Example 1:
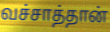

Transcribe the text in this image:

வச்சாத்தான்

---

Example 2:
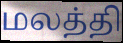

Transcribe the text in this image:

மலத்தி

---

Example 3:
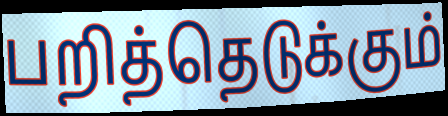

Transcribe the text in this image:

பறித்தெடுக்கும்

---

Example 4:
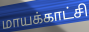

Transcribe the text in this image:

மாயக்காட்சி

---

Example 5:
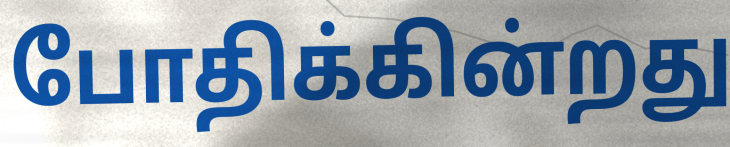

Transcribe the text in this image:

போதிக்கின்றது